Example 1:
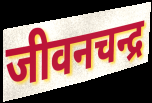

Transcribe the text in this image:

जीवनचन्द्र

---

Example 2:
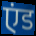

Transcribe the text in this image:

एंड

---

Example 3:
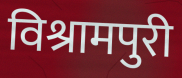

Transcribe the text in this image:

विश्रामपुरी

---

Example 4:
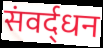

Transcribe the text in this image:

संवर्द्धन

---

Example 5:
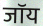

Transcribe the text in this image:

जॉय